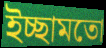
ইচ্ছামতো